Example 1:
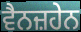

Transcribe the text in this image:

ਵੈਨਜ਼ਹੇਨ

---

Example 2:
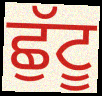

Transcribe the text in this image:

ਛੁੱਟੂ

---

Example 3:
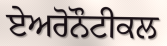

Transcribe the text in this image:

ਏਅਰੋਨੌਟੀਕਲ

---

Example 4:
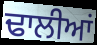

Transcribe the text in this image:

ਢਾਲੀਆਂ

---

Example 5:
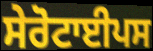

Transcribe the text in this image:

ਸੇਰੋਟਾਈਪਸ